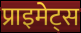
प्राइमेट्स